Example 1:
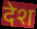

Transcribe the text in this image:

देश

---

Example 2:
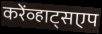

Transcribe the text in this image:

करेंव्हाट्सएप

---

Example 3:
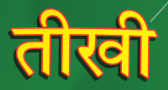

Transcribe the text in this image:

तीखी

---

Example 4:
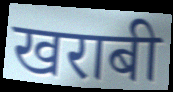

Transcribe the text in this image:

खराबी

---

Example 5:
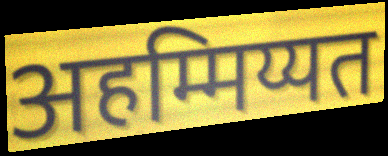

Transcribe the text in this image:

अहम्मिय्यत